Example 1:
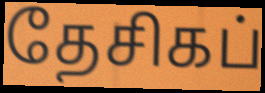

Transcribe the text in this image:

தேசிகப்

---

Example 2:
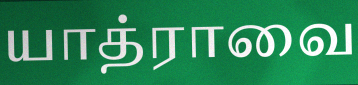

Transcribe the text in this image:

யாத்ராவை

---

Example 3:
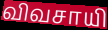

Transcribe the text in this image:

விவசாயி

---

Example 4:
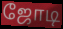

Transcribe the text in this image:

ஜோடி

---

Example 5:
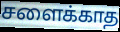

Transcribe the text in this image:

சளைக்காத